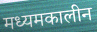
मध्यमकालीन